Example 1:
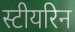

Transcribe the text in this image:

स्टीयरिन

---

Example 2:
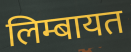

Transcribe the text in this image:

लिम्बायत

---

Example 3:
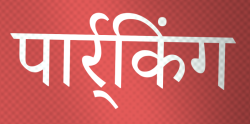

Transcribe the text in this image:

पार्र्किंग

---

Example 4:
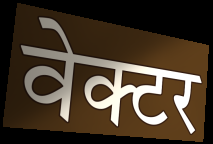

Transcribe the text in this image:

वेक्टर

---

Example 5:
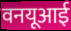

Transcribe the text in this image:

वनयूआई